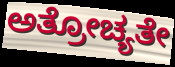
ಅತ್ರೋಚ್ಯತೇ